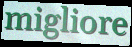
migliore